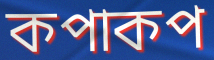
কপাকপ